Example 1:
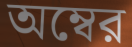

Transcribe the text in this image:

অম্বের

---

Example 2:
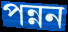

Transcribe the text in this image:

পন্নন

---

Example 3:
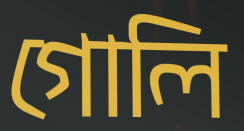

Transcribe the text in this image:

গোলি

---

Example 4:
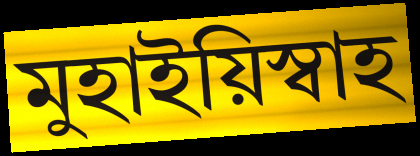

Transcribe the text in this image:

মুহাইয়িস্বাহ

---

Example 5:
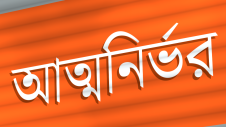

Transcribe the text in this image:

আত্মনির্ভর